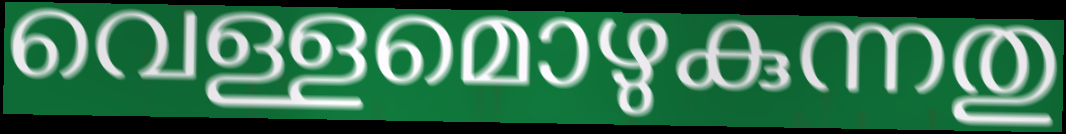
വെള്ളമൊഴുകുന്നതു